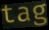
tag